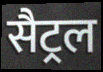
सैट्रल